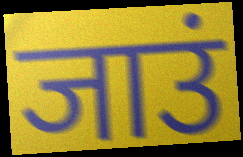
जाउं